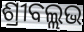
ଶ୍ରୀବଲ୍ଲଭ